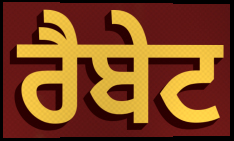
ਰੈਬੇਟ